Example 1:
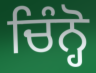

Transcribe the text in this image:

ਚਿੰਨ੍ਹੋ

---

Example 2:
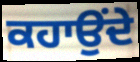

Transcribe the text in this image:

ਕਹਾਉਂਦੇ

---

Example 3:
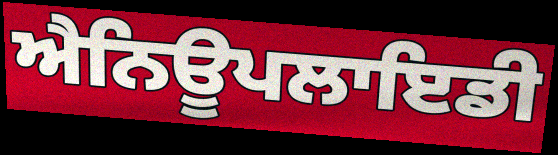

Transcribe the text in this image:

ਐਨਿਊਪਲਾਇਡੀ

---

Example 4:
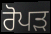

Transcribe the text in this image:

ਰੋਪੜ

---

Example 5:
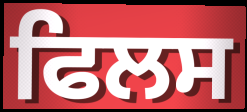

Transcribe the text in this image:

ਫਿਲਸ